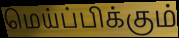
மெய்ப்பிக்கும்